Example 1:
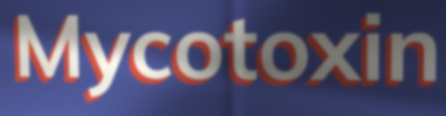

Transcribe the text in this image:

Mycotoxin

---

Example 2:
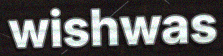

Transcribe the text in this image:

wishwas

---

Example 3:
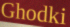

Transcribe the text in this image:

Ghodki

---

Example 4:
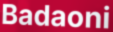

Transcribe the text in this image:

Badaoni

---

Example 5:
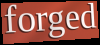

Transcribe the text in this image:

forged